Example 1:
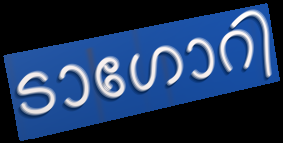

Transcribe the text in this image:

ടാഗോറി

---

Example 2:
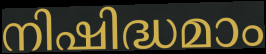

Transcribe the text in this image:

നിഷിദ്ധമാം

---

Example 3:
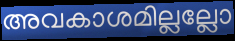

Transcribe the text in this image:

അവകാശമില്ലല്ലോ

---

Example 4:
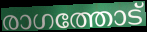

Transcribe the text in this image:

രാഗത്തോട്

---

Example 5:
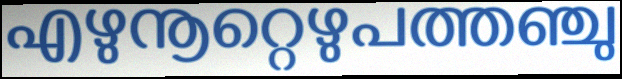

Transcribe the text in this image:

എഴുനൂറ്റെഴുപത്തഞ്ചു